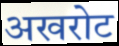
अखरोट